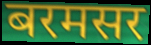
बरमसर